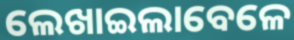
ଲେଖାଇଲାବେଳେ